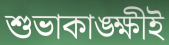
শুভাকাঙ্ক্ষীই